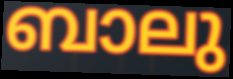
ബാലു